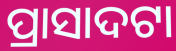
ପ୍ରାସାଦଟା